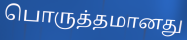
பொருத்தமானது